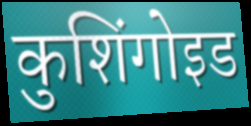
कुशिंगोइड